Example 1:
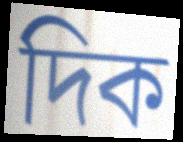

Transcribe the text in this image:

দিক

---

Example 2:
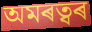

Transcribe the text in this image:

অমৰত্বৰ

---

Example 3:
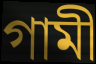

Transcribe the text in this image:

গামী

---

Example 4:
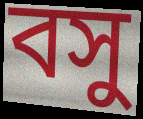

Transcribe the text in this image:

বসু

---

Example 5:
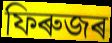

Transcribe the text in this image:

ফিৰুজৰ